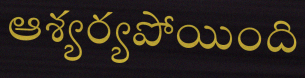
ఆశ్యర్యపోయింది